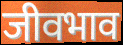
जीवभाव